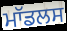
ਮਾੱਡਲਸ